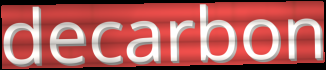
decarbon